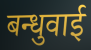
बन्धुवाई